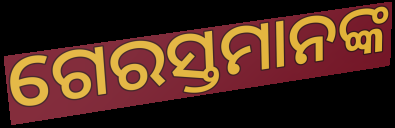
ଗେରସ୍ତମାନଙ୍କ